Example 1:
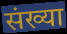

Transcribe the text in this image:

संख्‍या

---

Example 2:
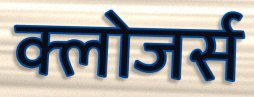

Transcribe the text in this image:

क्लोजर्स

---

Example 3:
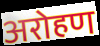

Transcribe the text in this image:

अरोहण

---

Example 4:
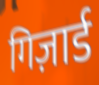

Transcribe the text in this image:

गिज़ार्ड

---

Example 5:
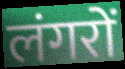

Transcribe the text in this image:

लंगरों